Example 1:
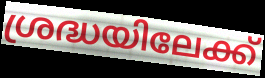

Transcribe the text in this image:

ശ്രദ്ധയിലേക്ക്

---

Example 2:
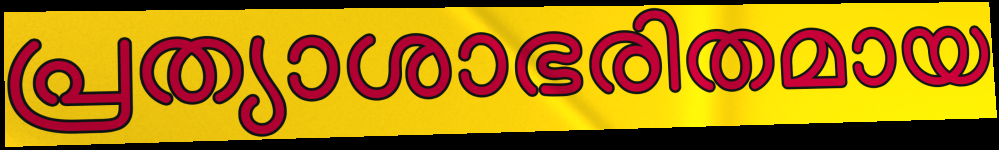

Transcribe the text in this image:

പ്രത്യാശാഭരിതമായ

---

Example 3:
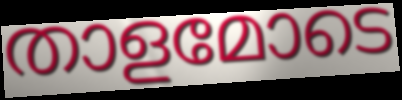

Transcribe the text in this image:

താളമോടെ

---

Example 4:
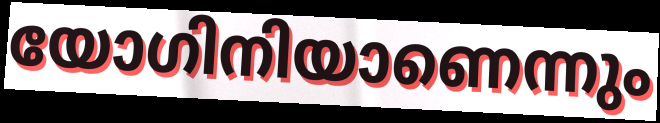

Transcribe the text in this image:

യോഗിനിയാണെന്നും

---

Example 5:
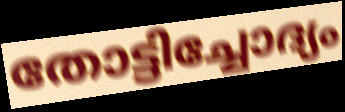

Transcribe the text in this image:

തോട്ടിച്ചോദ്യം